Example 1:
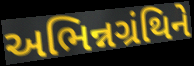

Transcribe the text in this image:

અભિન્નગ્રંથિને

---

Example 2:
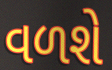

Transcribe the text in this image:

વળશે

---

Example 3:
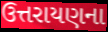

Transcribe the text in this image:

ઉત્તરાયણના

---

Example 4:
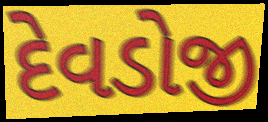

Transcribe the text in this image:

દેવડોજી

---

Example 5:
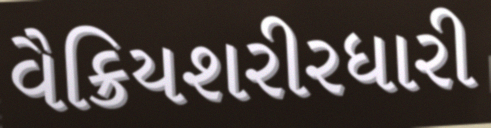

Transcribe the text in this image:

વૈક્રિયશરીરધારી